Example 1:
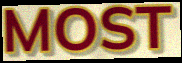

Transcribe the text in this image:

MOST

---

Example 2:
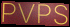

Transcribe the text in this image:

PVPS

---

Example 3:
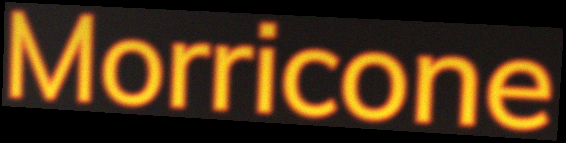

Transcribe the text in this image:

Morricone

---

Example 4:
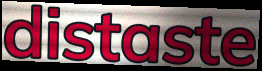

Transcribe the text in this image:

distaste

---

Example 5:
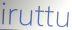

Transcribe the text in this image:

iruttu